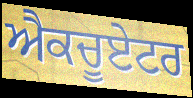
ਐਕਚੂਏਟਰ